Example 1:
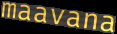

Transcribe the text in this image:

maavana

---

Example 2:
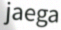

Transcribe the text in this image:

jaega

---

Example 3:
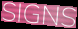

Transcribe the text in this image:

SIGNS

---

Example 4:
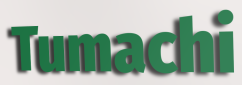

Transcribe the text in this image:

Tumachi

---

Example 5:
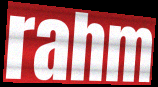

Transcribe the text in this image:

rahm